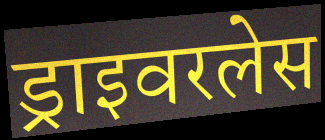
ड्राइवरलेस